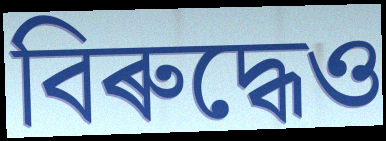
বিৰুদ্ধেও